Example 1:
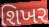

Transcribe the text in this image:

શિખર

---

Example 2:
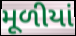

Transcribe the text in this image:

મૂળીયાં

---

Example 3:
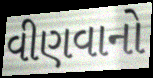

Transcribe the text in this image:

વીણવાનો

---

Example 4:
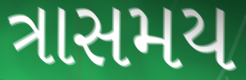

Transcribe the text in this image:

ત્રાસમય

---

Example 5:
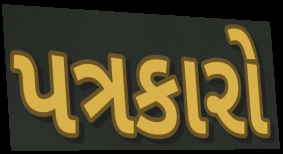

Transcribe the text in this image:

પત્રકારો